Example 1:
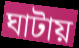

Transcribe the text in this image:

ঘাটায়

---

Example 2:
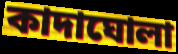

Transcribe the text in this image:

কাদাঘোলা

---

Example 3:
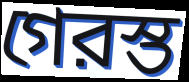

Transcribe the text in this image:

গেরস্ত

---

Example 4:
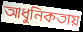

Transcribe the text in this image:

আধুনিকতায়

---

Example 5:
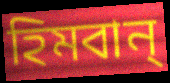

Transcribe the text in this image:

হিমবান্